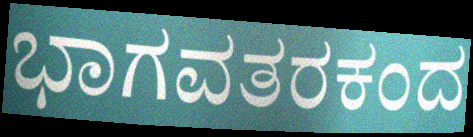
ಭಾಗವತರಕಂದ